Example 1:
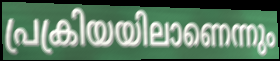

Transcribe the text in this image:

പ്രക്രിയയിലാണെന്നും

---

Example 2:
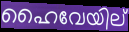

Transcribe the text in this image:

ഹൈവേയില്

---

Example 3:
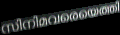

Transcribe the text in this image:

സിനിമവരെയെത്തി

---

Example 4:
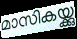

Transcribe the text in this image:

മാസികയ്ക്കു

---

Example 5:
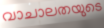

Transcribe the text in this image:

വാചാലതയുടെ